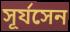
সূর্যসেন